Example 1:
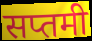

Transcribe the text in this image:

सप्तमी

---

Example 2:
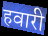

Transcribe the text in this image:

हवारी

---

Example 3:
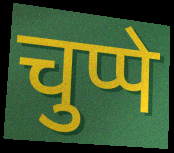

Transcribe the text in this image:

चुप्पे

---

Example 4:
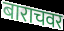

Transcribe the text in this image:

बाराचवर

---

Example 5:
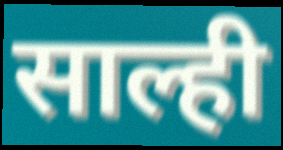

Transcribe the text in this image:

साल्ही